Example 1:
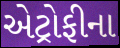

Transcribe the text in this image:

એટ્રોફીના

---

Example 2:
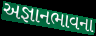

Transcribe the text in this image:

અજ્ઞાનભાવના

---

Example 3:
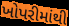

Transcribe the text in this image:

ખોપરીમાંથી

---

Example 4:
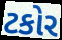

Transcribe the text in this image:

ટકોર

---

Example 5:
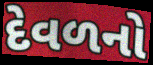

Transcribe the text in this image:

દેવળનો